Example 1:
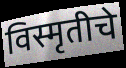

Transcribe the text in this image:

विस्मृतीचे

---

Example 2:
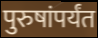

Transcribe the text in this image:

पुरुषांपर्यंत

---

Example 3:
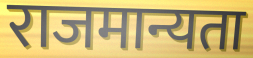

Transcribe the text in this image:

राजमान्यता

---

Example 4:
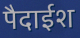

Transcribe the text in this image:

पैदाईश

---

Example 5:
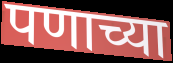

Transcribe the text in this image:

पणाच्या